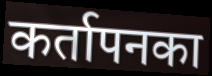
कर्तापनका